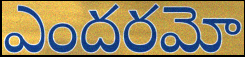
ఎందరమో